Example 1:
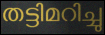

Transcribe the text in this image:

തട്ടിമറിച്ചു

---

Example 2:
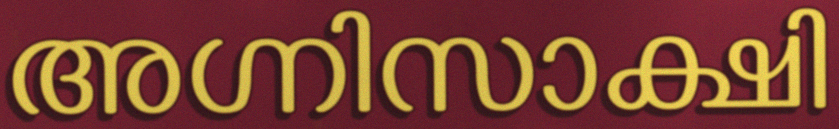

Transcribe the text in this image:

അഗ്നിസാക്ഷി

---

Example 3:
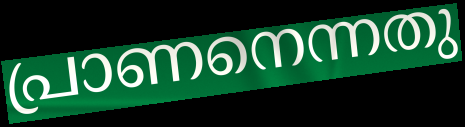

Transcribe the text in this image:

പ്രാണനെന്നതു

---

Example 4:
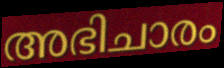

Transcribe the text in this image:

അഭിചാരം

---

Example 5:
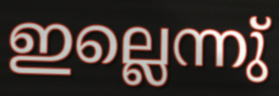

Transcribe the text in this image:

ഇല്ലെന്നു്